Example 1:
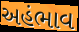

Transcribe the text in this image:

અહંભાવ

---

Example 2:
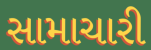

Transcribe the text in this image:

સામાચારી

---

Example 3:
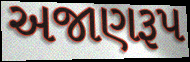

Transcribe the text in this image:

અજાણરૂપ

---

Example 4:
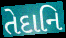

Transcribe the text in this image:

તેદાનિ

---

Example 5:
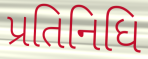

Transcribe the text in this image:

પ્રતિનિધિ